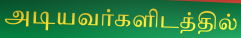
அடியவர்களிடத்தில்